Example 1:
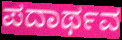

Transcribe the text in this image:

ಪದಾರ್ಥವ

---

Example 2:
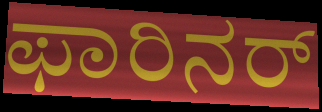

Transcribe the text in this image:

ಫಾರಿನರ್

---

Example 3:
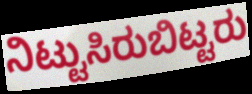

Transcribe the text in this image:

ನಿಟ್ಟುಸಿರುಬಿಟ್ಟರು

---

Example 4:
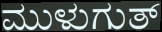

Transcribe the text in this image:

ಮುಳುಗುತ್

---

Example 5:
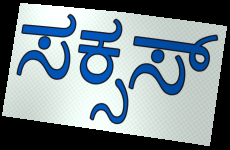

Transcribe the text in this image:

ಸಕ್ಸಸ್